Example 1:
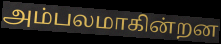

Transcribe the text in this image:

அம்பலமாகின்றன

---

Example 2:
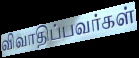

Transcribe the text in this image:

விவாதிப்பவர்கள்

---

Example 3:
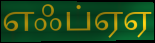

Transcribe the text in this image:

எஃப்ஏஏ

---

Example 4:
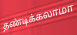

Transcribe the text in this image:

தண்டிக்கலாமா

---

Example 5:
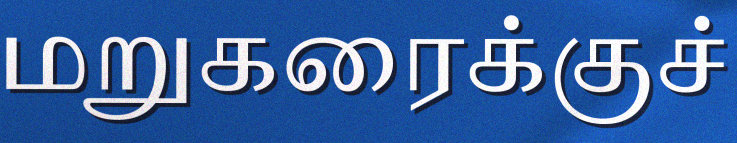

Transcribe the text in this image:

மறுகரைக்குச்